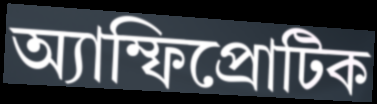
অ্যাম্ফিপ্রোটিক